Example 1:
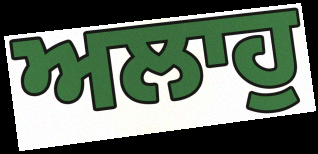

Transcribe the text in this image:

ਅਲਾਹੁ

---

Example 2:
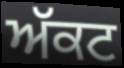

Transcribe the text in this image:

ਅੱਕਟ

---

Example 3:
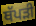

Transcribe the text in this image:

ਥੱਪੜੀ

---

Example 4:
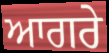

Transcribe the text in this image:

ਆਗਰੇ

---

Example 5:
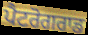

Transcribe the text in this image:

ਪੈਟਰੋਗਰਾਡ